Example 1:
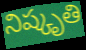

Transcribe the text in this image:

నిష్కృతి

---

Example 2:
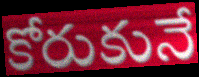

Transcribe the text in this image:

కోరుకునే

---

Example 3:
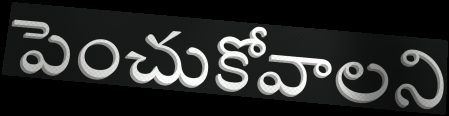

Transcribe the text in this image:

పెంచుకోవాలని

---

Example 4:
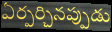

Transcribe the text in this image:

ఏర్పర్చినప్పుడు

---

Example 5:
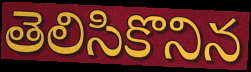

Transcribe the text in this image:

తెలిసికొనిన